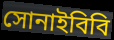
সোনাইবিবি